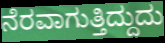
ನೆರವಾಗುತ್ತಿದ್ದುದು